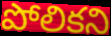
పోలికని